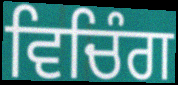
ਵਿਚਿੰਗ